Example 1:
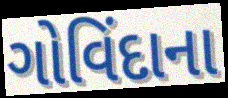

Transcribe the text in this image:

ગોવિંદાના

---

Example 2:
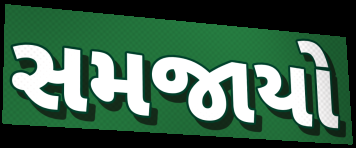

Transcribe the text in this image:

સમજાયો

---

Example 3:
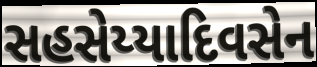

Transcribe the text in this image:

સહસેય્યાદિવસેન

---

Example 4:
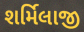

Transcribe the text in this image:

શર્મિલાજી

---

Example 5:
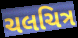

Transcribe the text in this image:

ચલચિત્ર